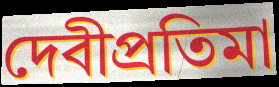
দেবীপ্রতিমা